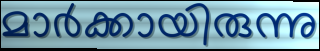
മാർക്കായിരുന്നു